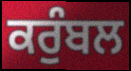
ਕਰੁੰਬਲ